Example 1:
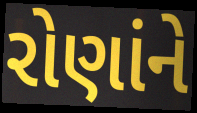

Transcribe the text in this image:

રોણાંને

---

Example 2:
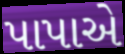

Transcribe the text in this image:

પાપાએ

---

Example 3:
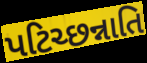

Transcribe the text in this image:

પટિચ્છન્નાતિ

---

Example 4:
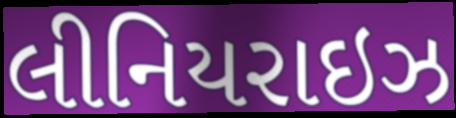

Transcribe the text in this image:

લીનિયરાઇઝ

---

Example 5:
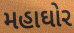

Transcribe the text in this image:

મહાઘોર